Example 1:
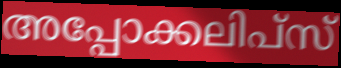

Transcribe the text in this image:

അപ്പോക്കലിപ്സ്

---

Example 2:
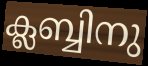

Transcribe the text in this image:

ക്ലബ്ബിനു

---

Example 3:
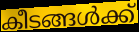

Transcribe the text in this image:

കീടങ്ങൾക്ക്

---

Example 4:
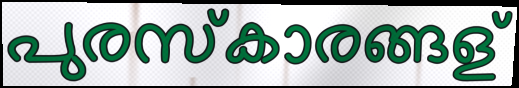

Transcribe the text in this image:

പുരസ്കാരങ്ങള്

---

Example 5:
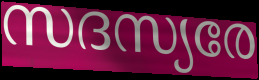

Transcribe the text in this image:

സദസ്യരേ